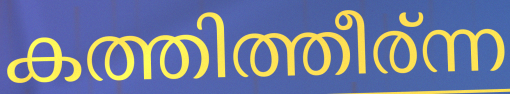
കത്തിത്തീര്ന്ന